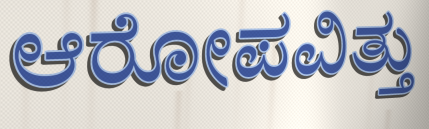
ಆರೋಪವಿತ್ತು